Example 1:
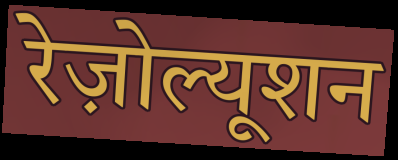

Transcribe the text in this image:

रेज़ोल्यूशन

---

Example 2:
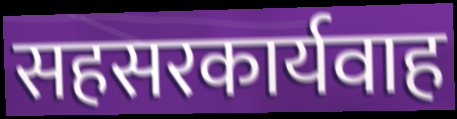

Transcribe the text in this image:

सहसरकार्यवाह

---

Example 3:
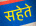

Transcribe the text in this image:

सहेते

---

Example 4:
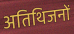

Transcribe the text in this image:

अतिथिजनों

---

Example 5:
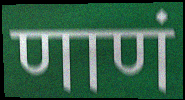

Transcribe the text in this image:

णाणं